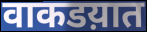
वाकडय़ात